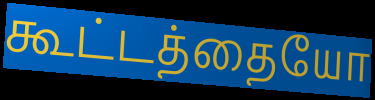
கூட்டத்தையோ